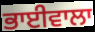
ਭਾਈਵਾਲਾ